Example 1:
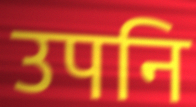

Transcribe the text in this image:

उपनि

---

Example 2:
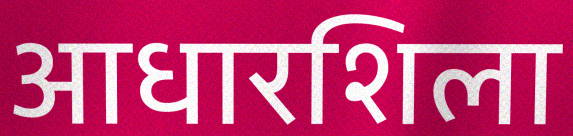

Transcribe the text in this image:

आधारशिला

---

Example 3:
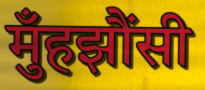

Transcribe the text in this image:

मुँहझौंसी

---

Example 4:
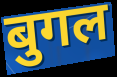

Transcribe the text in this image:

बुगल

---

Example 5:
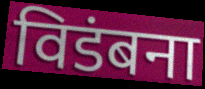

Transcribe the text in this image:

विडंबना